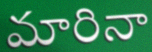
మారినా